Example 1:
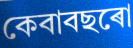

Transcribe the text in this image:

কেবাবছৰো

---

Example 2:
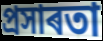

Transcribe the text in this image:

প্ৰসাৰতা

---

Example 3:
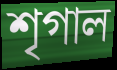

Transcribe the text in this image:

শৃগাল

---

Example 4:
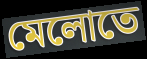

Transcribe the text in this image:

মেলোতে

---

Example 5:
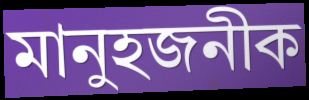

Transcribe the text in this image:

মানুহজনীক